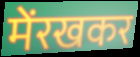
मेंरखकर